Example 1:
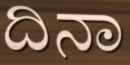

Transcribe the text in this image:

ದಿನಾ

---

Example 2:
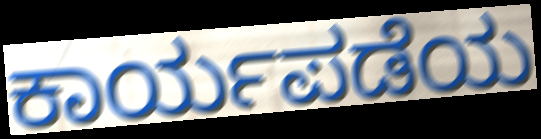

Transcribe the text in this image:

ಕಾರ್ಯಪಡೆಯ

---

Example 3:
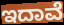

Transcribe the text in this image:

ಇದಾವೆ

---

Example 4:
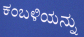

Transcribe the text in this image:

ಕಂಬಳಿಯನ್ನು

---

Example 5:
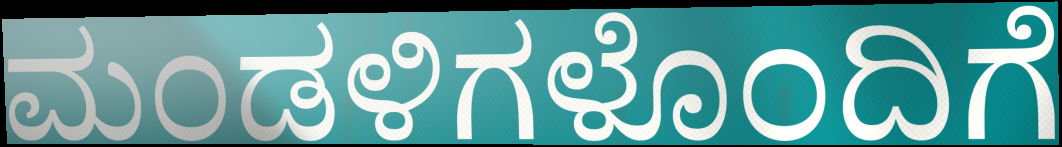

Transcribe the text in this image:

ಮಂಡಳಿಗಳೊಂದಿಗೆ